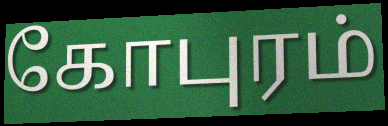
கோபுரம்